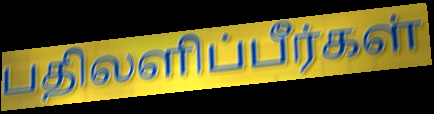
பதிலளிப்பீர்கள்